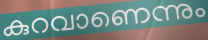
കുറവാണെന്നും